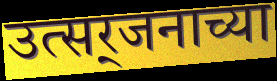
उत्सर्जनाच्या